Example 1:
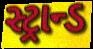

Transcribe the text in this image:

સ્ટ્રાન્ડ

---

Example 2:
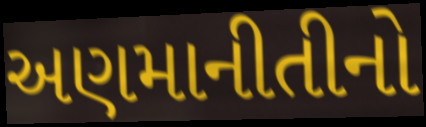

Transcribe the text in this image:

અણમાનીતીનો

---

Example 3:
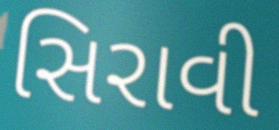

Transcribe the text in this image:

સિરાવી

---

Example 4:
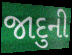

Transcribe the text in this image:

જાદુની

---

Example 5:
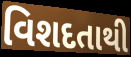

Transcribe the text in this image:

વિશદતાથી